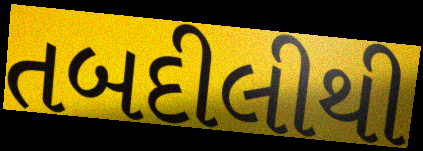
તબદીલીથી